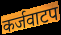
कर्जवाटप